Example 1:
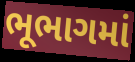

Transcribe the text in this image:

ભૂભાગમાં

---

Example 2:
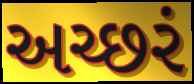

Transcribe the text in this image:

અચ્છરં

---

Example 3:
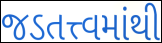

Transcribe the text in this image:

જડતત્ત્વમાંથી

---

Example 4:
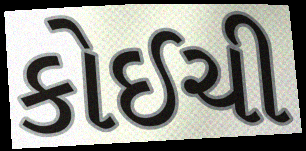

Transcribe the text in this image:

કોઈચી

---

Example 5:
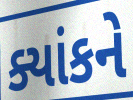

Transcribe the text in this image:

ક્યાંકને